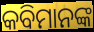
କବିମାନଙ୍କ